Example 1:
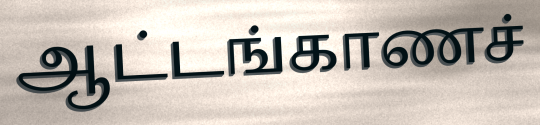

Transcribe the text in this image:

ஆட்டங்காணச்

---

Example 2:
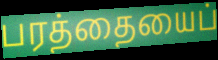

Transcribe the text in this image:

பரத்தையைப்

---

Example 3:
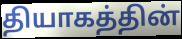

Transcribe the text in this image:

தியாகத்தின்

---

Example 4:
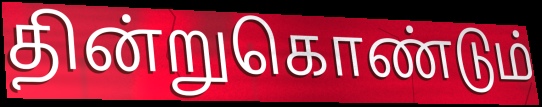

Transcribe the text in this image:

தின்றுகொண்டும்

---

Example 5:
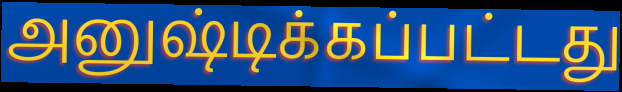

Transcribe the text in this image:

அனுஷ்டிக்கப்பட்டது